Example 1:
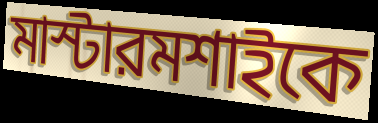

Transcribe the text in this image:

মাস্টারমশাইকে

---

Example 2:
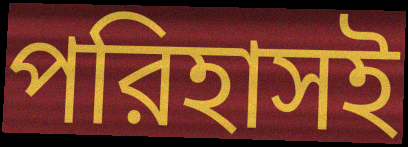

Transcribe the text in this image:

পরিহাসই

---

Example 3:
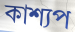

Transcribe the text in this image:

কাশ্যপ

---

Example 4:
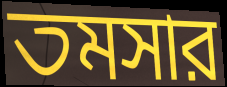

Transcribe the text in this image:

তমসার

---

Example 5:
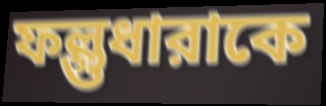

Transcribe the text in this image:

ফল্গুধারাকে